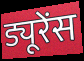
ड्यूरेंस